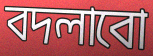
বদলাবো